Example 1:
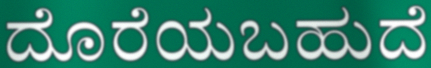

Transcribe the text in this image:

ದೊರೆಯಬಹುದೆ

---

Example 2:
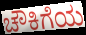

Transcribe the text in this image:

ಚೌಕಿಗೆಯ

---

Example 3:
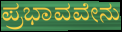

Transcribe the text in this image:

ಪ್ರಭಾವವೇನು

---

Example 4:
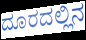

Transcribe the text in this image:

ದೂರದಲ್ಲಿನ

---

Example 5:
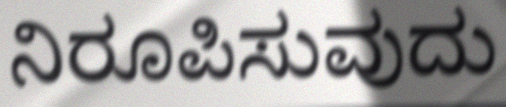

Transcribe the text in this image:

ನಿರೂಪಿಸುವುದು